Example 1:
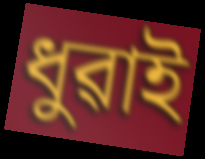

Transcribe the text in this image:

ধুৱাই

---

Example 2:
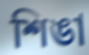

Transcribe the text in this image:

শিঙা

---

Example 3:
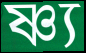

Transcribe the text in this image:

ষ্ণ্য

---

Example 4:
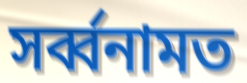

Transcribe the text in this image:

সৰ্ব্বনামত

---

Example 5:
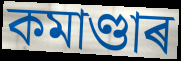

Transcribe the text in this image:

কমাণ্ডাৰ